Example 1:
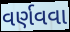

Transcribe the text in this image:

વર્ણવવા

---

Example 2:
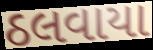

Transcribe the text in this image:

ઠલવાયા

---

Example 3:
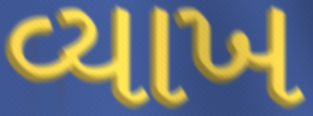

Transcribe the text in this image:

વ્યાખ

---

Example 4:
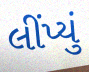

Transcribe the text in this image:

લીંપ્યું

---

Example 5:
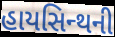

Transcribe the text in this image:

હાયસિન્થની